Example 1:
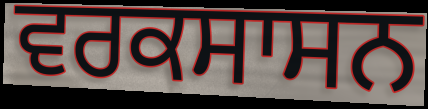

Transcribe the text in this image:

ਵਰਕਸਾਸਨ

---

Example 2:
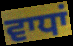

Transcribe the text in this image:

ਵਾਧਾਂ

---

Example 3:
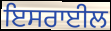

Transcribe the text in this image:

ਇਸਰਾਈਲ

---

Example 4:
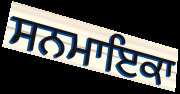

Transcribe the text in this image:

ਸਨਮਾਇਕਾ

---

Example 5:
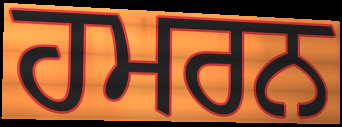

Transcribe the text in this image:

ਹਮਰਨ